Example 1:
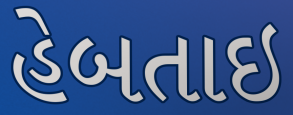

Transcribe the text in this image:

હેબતાઇ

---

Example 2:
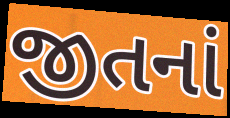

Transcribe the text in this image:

જીતનાં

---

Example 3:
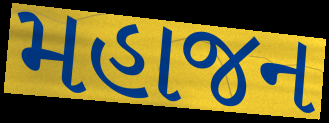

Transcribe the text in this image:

મહાજન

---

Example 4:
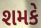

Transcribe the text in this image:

શમકે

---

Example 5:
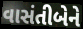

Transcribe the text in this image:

વાસંતીબેને